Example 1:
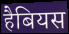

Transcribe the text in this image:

हैबियस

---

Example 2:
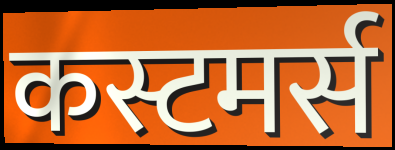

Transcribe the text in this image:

कस्टमर्स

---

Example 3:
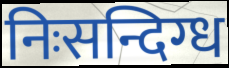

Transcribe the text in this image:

निःसन्दिग्ध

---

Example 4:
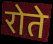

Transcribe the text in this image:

रोते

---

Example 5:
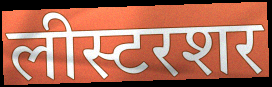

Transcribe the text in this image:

लीस्टरशर